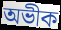
অভীক